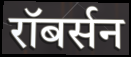
रॉबर्सन